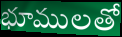
భూములతో